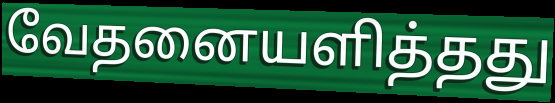
வேதனையளித்தது